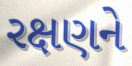
રક્ષણને